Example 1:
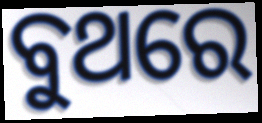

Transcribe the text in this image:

ବୁଥରେ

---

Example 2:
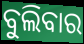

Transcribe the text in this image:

ବୁଲିବାର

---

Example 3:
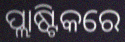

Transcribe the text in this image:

ପ୍ଲାଷ୍ଟିକରେ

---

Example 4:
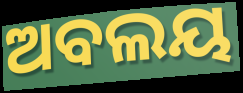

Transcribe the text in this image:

ଅବଲୟ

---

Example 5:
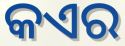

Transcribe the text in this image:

କଏର